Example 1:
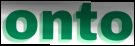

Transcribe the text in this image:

onto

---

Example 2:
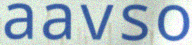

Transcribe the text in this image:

aavso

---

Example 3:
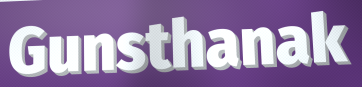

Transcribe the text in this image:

Gunsthanak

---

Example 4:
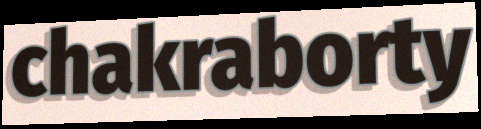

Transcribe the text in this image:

chakraborty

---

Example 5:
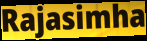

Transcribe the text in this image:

Rajasimha